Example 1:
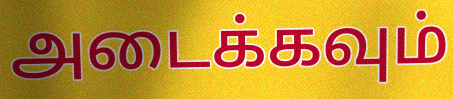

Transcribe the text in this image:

அடைக்கவும்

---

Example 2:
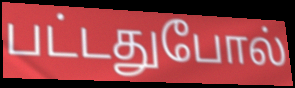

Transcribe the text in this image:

பட்டதுபோல்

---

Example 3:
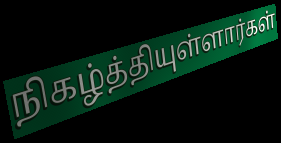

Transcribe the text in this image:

நிகழ்த்தியுள்ளார்கள்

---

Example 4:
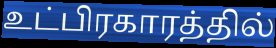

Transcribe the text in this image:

உட்பிரகாரத்தில்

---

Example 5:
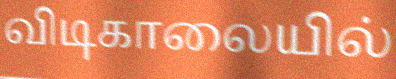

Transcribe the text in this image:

விடிகாலையில்